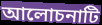
আলোচনাটি